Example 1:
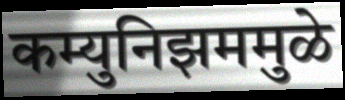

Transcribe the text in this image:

कम्युनिझममुळे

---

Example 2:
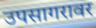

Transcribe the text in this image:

उपसागरावर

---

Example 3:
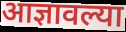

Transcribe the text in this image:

आज्ञावल्या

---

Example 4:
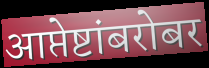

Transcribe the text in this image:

आप्तेष्टांबरोबर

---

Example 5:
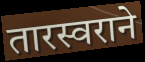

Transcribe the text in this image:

तारस्वराने